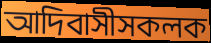
আদিবাসীসকলক